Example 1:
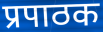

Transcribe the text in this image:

प्रपाठक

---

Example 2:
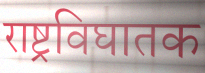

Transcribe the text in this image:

राष्ट्रविघातक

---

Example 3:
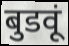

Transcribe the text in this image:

बुडवूं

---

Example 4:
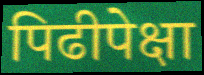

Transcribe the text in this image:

पिढीपेक्षा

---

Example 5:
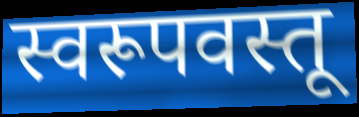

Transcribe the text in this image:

स्वरूपवस्तू